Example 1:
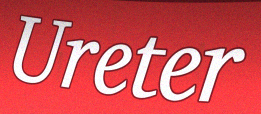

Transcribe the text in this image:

Ureter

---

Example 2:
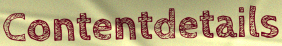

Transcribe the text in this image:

Contentdetails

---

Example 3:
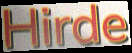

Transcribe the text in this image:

Hirde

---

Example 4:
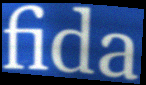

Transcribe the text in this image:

fida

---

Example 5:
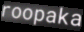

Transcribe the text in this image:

roopaka